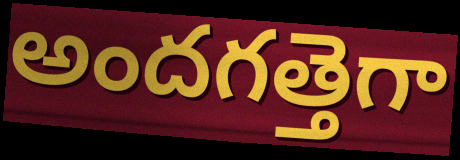
అందగత్తెగా